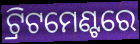
ଟ୍ରିଟମେଣ୍ଟରେ